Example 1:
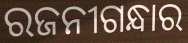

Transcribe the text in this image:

ରଜନୀଗନ୍ଧାର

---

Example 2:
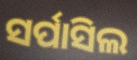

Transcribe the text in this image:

ସର୍ପାସିଲ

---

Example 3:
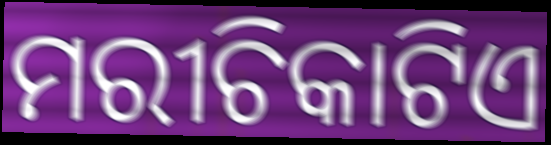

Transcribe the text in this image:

ମରୀଚିକାଟିଏ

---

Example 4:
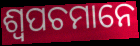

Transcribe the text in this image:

ଶ୍ୱପଚମାନେ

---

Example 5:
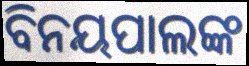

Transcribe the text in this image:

ବିନୟପାଲଙ୍କ